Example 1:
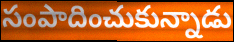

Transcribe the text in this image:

సంపాదించుకున్నాడు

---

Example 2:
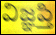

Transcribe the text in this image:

విజ్ఞప్తి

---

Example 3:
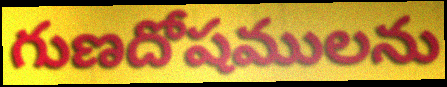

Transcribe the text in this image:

గుణదోషములను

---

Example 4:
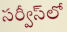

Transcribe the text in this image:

సర్వీస్‌లో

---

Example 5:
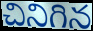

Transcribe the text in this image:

చినిగిన